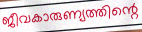
ജീവകാരുണ്യത്തിന്റെ